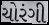
ચોરંગી